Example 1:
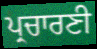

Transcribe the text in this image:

ਪ੍ਰਚਾਰਣੀ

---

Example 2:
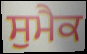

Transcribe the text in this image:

ਸੁਮੈਕ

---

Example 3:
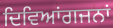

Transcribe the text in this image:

ਦਿਵਿਆਂਗਜਨਾਂ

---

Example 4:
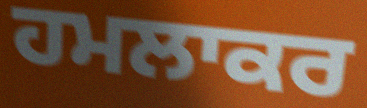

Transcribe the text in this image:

ਹਮਲਾਕਰ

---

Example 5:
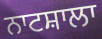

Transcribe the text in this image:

ਨਾਟਸ਼ਾਲਾ